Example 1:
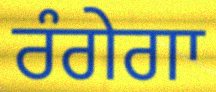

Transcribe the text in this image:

ਰੰਗੇਗਾ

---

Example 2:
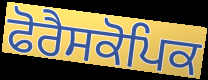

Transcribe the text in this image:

ਫੋਰੈਸਕੋਪਿਕ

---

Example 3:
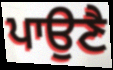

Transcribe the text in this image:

ਪਾਉਣੈ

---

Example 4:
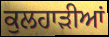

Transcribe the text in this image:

ਕੁਲਹਾੜੀਆਂ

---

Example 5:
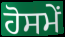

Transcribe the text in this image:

ਹੋਸਮੇਂ